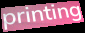
printing